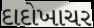
દાદોખાચર